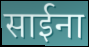
साईना